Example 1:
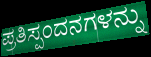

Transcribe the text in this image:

ಪ್ರತಿಸ್ಪಂದನಗಳನ್ನು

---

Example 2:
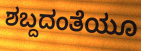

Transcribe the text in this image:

ಶಬ್ದದಂತೆಯೂ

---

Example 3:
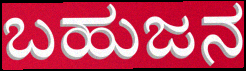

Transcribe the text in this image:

ಬಹುಜನ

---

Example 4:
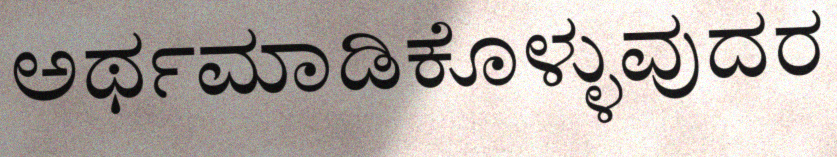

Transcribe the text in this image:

ಅರ್ಥಮಾಡಿಕೊಳ್ಳುವುದರ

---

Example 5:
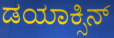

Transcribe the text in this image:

ಡಯಾಕ್ಸಿನ್